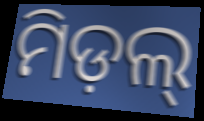
ମିଡ଼ଲ୍